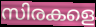
സിരകളെ